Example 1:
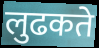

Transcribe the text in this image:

लुढकते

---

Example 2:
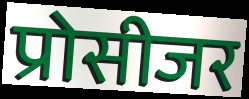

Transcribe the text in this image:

प्रोसीजर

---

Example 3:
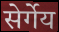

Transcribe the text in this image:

सेर्गेय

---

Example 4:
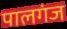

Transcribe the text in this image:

पालगंज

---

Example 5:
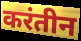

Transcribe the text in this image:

करंतीन